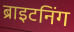
ब्राइटनिंग